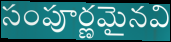
సంపూర్ణమైనవి